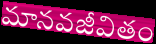
మానవజీవితం